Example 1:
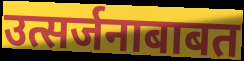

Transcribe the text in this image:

उत्सर्जनाबाबत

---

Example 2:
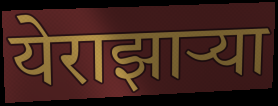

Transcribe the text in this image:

येराझाऱ्या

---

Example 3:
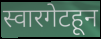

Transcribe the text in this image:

स्वारगेटहून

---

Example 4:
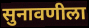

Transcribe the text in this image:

सुनावणीला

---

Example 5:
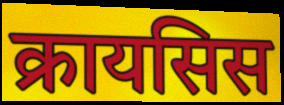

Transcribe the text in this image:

क्रायसिस